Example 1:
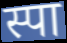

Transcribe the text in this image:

स्पा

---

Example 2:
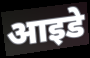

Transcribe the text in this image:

आइडे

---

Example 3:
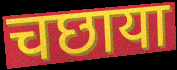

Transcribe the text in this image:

चछाया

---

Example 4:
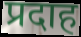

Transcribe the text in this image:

प्रदाह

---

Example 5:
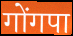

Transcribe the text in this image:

गोंगपा